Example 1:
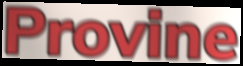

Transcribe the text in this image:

Provine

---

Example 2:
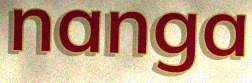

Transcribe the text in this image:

nanga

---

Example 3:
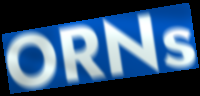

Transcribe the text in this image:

ORNs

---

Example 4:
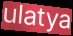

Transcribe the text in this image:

ulatya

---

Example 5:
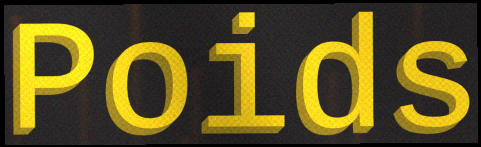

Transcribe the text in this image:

Poids